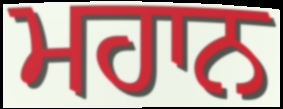
ਮਹਾਨ